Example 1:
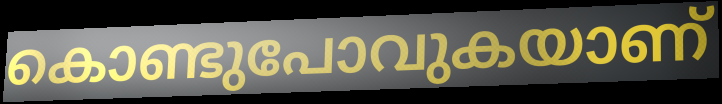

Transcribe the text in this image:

കൊണ്ടുപോവുകയാണ്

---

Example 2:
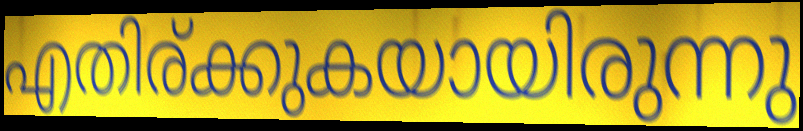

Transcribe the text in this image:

എതിര്ക്കുകയായിരുന്നു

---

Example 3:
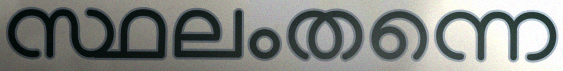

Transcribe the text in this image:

സ്ഥലംതന്നെ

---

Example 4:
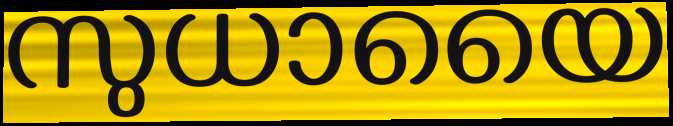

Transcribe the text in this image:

സുധായൈ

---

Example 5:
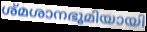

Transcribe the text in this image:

ശ്മശാനഭൂമിയായി